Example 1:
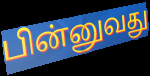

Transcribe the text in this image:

பின்னுவது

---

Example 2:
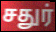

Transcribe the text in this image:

சதுர்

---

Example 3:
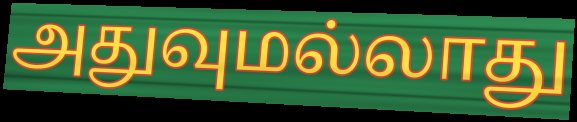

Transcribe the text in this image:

அதுவுமல்லாது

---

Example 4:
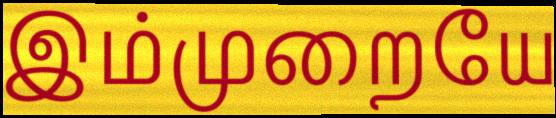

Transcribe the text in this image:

இம்முறையே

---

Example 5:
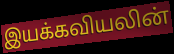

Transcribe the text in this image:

இயக்கவியலின்